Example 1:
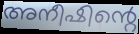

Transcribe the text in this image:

അനീഷിന്റെ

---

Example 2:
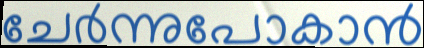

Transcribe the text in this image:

ചേർന്നുപോകാൻ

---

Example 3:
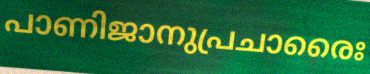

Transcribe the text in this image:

പാണിജാനുപ്രചാരൈഃ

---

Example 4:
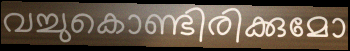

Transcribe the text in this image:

വച്ചുകൊണ്ടിരിക്കുമോ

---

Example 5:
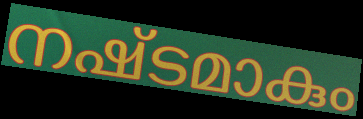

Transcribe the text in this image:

നഷ്‌ടമാകും